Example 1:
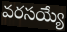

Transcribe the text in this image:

వరసయ్యే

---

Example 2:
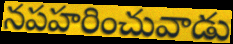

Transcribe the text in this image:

నపహరించువాడు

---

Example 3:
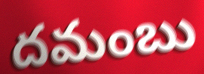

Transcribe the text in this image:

దమంబు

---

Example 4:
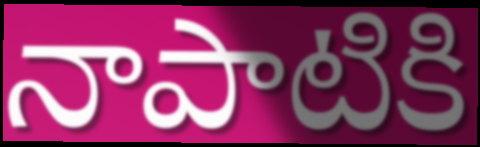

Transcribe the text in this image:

నాపాటికి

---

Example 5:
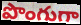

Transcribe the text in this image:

పొంగుగా